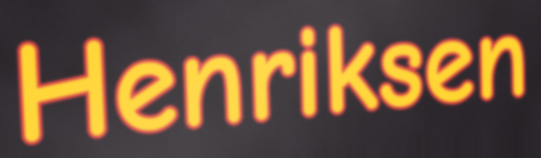
Henriksen